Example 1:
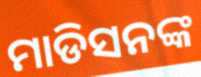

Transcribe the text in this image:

ମାଡିସନଙ୍କ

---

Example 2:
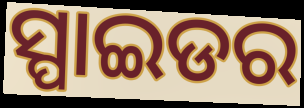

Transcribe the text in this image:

ସ୍ପାଇଡର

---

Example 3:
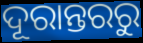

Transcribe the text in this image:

ଦୂରାନ୍ତରରୁ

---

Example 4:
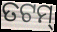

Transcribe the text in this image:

ତଟମ୍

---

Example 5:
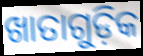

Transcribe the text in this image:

ଖାତାଗୁଡ଼ିକ